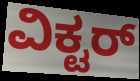
ವಿಕ್ಟರ್